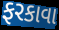
ફરકાવા